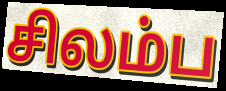
சிலம்ப